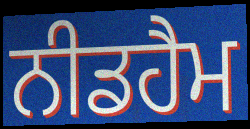
ਨੀਡਹੈਮ